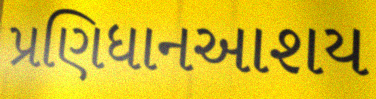
પ્રણિધાનઆશય